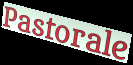
Pastorale